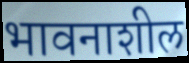
भावनाशील